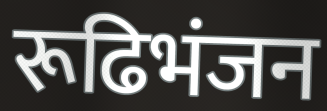
रूढिभंजन